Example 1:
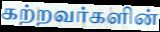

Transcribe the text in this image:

கற்றவர்களின்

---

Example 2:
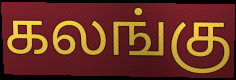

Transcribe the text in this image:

கலங்கு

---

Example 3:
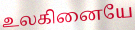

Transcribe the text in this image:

உலகினையே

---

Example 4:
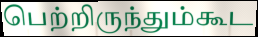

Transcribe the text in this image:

பெற்றிருந்தும்கூட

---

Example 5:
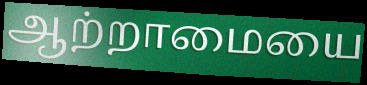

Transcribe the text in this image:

ஆற்றாமையை